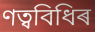
ণত্ববিধিৰ